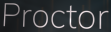
Proctor